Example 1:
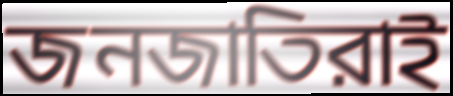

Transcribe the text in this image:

জনজাতিরাই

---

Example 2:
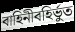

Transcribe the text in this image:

বাহিনীবহির্ভুত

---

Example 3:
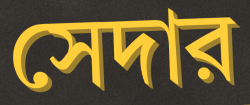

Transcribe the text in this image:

সেদার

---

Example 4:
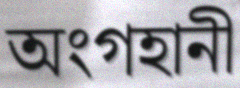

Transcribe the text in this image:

অংগহানী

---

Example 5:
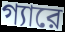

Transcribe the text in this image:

গ্যারে